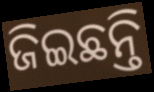
ଜିଇଛନ୍ତି